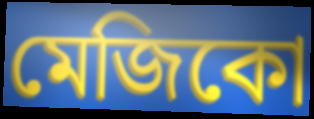
মেজিকো